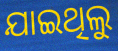
ଯାଇଥିଲୁ